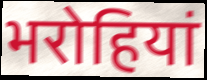
भरोहियां